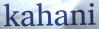
kahani